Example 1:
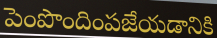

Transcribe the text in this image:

పెంపొందింపజేయడానికి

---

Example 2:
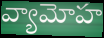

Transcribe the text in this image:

వ్యామోహ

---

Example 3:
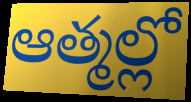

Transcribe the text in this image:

ఆత్మల్లో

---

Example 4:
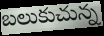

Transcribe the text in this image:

బలుకుచున్న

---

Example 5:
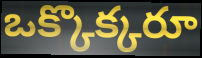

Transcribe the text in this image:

ఒక్కొక్కరూ